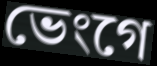
ভেংগে